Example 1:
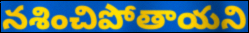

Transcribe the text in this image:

నశించిపోతాయని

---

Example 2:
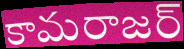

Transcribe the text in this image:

కామరాజర్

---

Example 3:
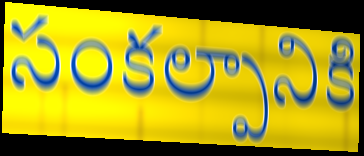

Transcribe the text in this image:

సంకల్పానికి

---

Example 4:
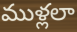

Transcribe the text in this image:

ముళ్లలా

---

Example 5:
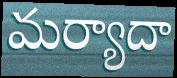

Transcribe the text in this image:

మర్యాదా